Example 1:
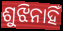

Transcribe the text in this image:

ଶୁଝିନାହିଁ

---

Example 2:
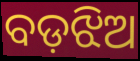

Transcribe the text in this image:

ବଡ଼ଝିଅ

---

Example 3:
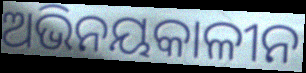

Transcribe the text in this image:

ଅଭିନୟକାଳୀନ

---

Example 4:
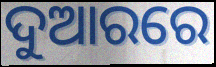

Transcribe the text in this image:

ଦୁଆରରେ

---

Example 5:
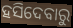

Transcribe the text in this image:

ହସିଦେବାରୁ